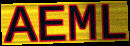
AEML